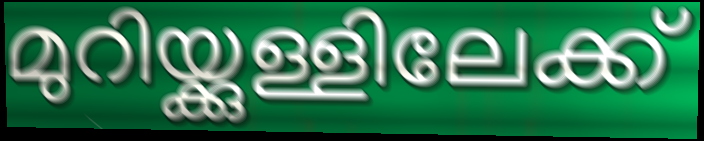
മുറിയ്ക്കുള്ളിലേക്ക്